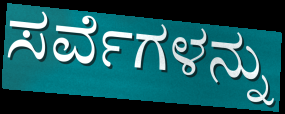
ಸರ್ವೆಗಳನ್ನು